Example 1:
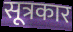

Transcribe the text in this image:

सूत्रकार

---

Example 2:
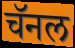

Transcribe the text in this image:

चॅनल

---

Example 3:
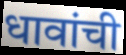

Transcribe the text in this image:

धावांची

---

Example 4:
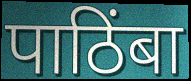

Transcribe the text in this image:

पाठिंबा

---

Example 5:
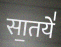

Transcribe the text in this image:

सा॒तये॑